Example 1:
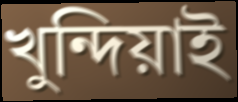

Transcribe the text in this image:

খুন্দিয়াই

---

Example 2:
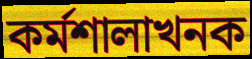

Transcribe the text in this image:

কৰ্মশালাখনক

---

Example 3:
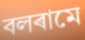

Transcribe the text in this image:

বলৰামে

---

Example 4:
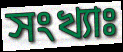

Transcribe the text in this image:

সংখ্যাঃ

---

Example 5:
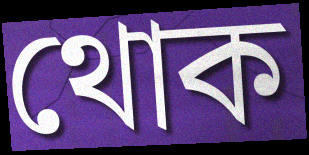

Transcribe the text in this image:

থোক